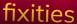
fixities